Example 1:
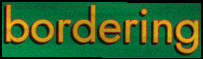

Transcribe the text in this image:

bordering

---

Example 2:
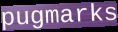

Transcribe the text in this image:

pugmarks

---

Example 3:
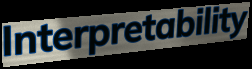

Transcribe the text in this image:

Interpretability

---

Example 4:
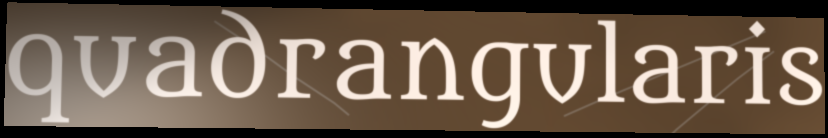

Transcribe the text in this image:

quadrangularis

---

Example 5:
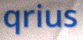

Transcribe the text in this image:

qrius